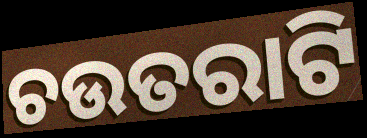
ଚଉତରାଟି